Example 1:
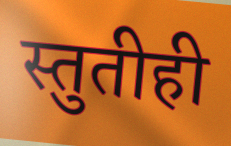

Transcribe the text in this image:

स्तुतीही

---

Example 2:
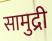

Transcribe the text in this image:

सामुद्री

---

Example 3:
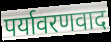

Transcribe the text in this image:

पर्यावरणवाद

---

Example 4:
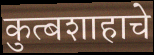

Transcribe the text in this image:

कुत्बशाहाचे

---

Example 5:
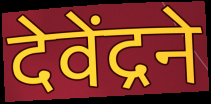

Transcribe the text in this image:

देवेंद्रने